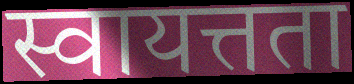
स्वायत्तता